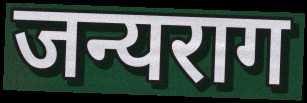
जन्यराग